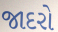
જાદરો